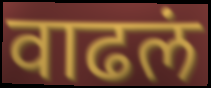
वाढलं